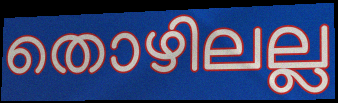
തൊഴിലല്ല